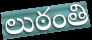
లుఠంతి